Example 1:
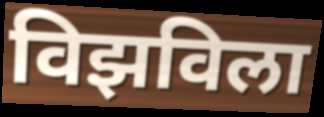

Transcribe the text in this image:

विझविला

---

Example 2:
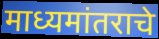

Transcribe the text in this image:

माध्यमांतराचे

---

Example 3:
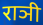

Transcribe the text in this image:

राञी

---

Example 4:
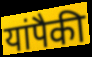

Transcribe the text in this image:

यांपैकी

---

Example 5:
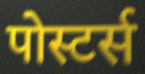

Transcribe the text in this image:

पोस्टर्स